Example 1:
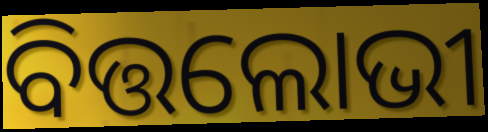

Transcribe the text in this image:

ବିତ୍ତଲୋଭୀ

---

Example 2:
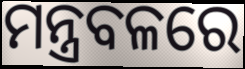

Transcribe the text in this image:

ମନ୍ତ୍ରବଳରେ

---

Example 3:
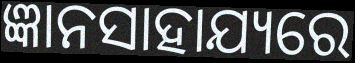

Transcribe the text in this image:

ଜ୍ଞାନସାହାଯ୍ୟରେ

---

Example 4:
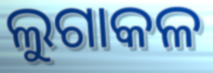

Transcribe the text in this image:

ଲୁଗାକଳ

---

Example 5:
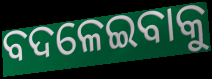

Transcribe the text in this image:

ବଦଳେଇବାକୁ